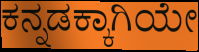
ಕನ್ನಡಕ್ಕಾಗಿಯೇ